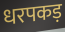
धरपकड़